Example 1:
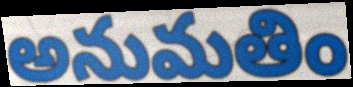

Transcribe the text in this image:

అనుమతిం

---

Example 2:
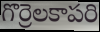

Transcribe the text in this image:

గొర్రెలకాపరి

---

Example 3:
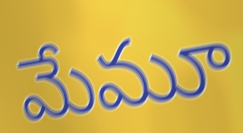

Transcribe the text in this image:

మేమూ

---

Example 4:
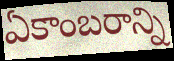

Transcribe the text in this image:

ఏకాంబరాన్ని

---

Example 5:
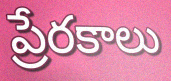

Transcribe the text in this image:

ప్రేరకాలు